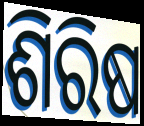
ଶିରିଷ